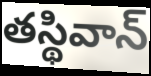
తస్థివాన్